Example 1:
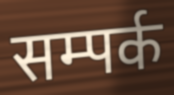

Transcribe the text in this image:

सम्पर्क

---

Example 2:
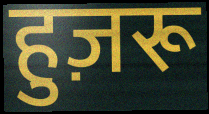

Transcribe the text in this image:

हुज़रू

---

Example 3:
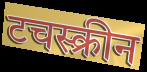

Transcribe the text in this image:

टचस्क्रीन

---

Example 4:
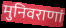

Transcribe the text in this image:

मुनिवराणां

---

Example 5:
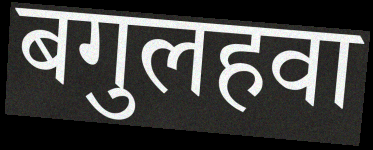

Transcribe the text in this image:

बगुलहवा